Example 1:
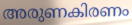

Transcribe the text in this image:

അരുണകിരണം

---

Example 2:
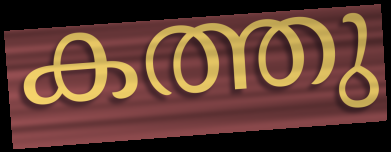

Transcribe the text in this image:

കത്തു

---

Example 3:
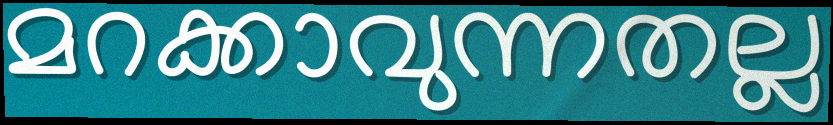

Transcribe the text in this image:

മറക്കാവുന്നതല്ല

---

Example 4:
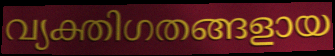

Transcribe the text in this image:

വ്യക്തിഗതങ്ങളായ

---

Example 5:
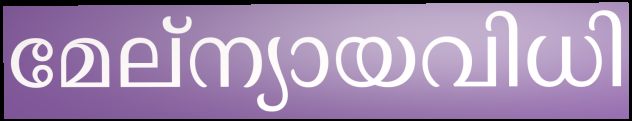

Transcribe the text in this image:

മേല്ന്യായവിധി